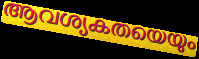
ആവശ്യകതയെയും